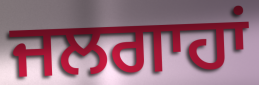
ਜਲਗਾਹਾਂ